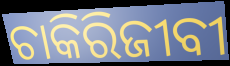
ଚାକିରିଜୀବୀ